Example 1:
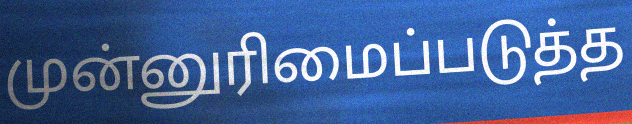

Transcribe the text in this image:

முன்னுரிமைப்படுத்த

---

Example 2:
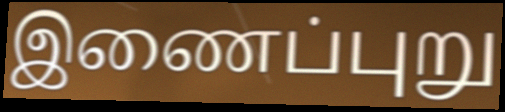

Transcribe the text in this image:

இணைப்புறு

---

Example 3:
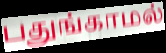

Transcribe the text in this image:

பதுங்காமல்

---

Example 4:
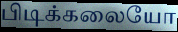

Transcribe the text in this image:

பிடிக்கலையோ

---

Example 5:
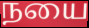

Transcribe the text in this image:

நயை